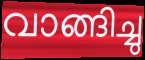
വാങ്ങിച്ചു